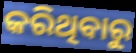
କରିଥିବାରୁ